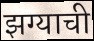
झग्याची